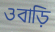
ওবাড়ি